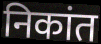
निकांत